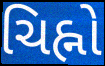
ચિહ્નો